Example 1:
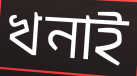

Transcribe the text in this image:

খনাই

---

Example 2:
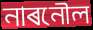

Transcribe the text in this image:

নাৰনৌল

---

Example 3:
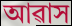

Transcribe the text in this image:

আৱাস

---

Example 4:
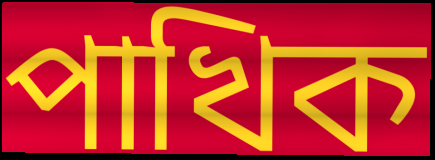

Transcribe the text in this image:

পাখিক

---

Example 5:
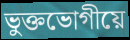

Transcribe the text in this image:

ভুক্তভোগীয়ে